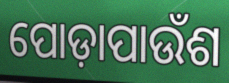
ପୋଡ଼ାପାଉଁଶ